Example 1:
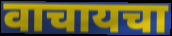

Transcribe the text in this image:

वाचायचा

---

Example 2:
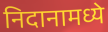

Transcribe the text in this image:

निदानामध्ये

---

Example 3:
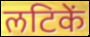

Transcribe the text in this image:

लटिकें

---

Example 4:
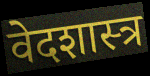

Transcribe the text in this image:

वेदशास्त्र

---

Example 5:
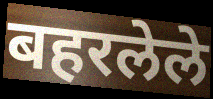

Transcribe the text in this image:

बहरलेले